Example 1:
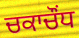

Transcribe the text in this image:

ਚਕਾਚੌਂਧ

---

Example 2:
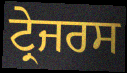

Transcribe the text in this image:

ਟ੍ਰੇਜਰਸ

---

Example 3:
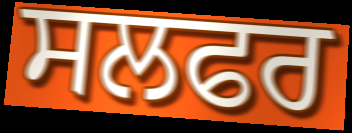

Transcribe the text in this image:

ਸਲਫਰ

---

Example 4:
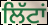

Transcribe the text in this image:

ਲਿੱਟਾਂ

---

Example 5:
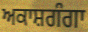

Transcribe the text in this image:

ਅਕਾਸ਼ਗੰਗਾ